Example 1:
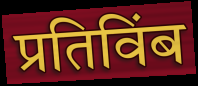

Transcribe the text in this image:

प्रतिविंब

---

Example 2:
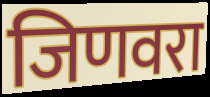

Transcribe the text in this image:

जिणवरा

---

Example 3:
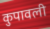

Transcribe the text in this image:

कुपावली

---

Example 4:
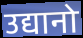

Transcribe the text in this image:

उद्यानो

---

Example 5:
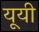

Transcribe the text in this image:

यूयी